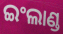
ଇଂଲାଣ୍ଡ